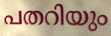
പതറിയും